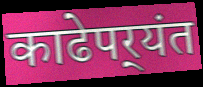
काढेपर्यंत